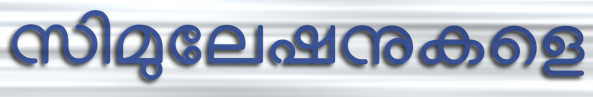
സിമുലേഷനുകളെ